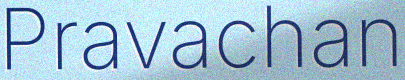
Pravachan